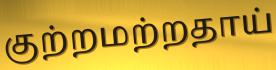
குற்றமற்றதாய்